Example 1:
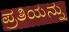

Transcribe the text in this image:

ಪ್ರತಿಯನ್ನು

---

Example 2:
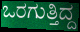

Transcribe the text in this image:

ಒರಗುತ್ತಿದ್ದ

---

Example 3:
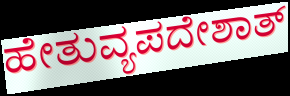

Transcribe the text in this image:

ಹೇತುವ್ಯಪದೇಶಾತ್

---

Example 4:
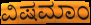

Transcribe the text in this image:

ವಿಷಮಾಂ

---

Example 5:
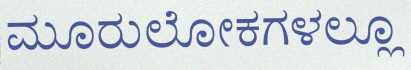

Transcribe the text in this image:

ಮೂರುಲೋಕಗಳಲ್ಲೂ